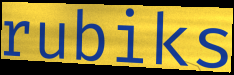
rubiks